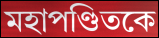
মহাপণ্ডিতকে